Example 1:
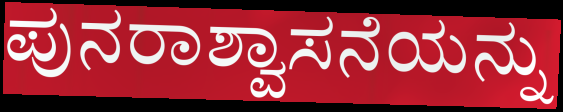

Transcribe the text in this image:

ಪುನರಾಶ್ವಾಸನೆಯನ್ನು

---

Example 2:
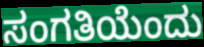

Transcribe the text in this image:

ಸಂಗತಿಯೆಂದು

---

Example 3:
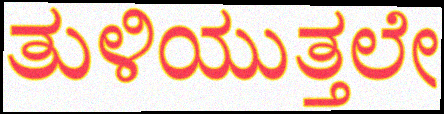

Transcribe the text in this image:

ತುಳಿಯುತ್ತಲೇ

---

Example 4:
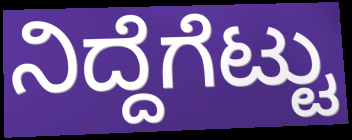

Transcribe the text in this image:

ನಿದ್ದೆಗೆಟ್ಟು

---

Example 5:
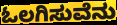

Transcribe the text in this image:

ಓಲಗಿಸುವೆನು